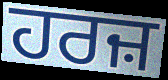
ਹਰਜ਼